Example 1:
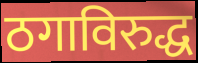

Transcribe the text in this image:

ठगाविरुद्ध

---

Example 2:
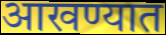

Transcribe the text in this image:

आखण्यात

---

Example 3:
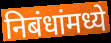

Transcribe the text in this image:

निबंधांमध्ये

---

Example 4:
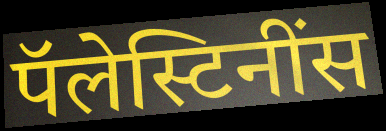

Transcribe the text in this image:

पॅलेस्टिनींस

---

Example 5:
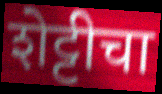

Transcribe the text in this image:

शेट्टीचा